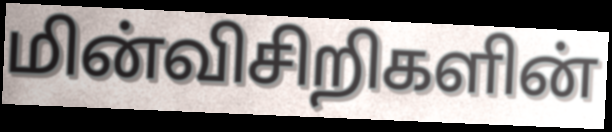
மின்விசிறிகளின்